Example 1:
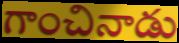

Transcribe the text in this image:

గాంచినాడు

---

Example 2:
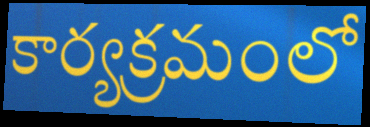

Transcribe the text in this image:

కార్యక్రమంలో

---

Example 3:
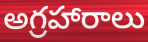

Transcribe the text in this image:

అగ్రహారాలు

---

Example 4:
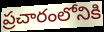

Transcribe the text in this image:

ప్రచారంలోనికి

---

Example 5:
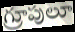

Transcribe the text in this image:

గ్రూపులూ